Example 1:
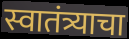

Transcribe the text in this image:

स्‍वातंत्र्याचा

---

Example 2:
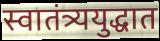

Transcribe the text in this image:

स्वातंत्र्ययुद्धात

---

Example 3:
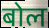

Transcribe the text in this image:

बोल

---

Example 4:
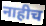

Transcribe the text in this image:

नाहीच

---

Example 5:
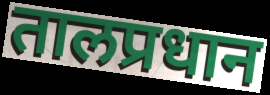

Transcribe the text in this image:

तालप्रधान